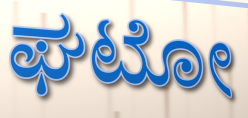
ಘಟೋ